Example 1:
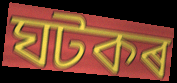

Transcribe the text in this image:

ঘটকৰ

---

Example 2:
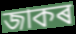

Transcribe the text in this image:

জাকৰ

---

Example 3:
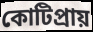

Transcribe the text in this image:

কোটিপ্ৰায়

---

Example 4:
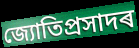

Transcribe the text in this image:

জ্যোতিপ্ৰসাদৰ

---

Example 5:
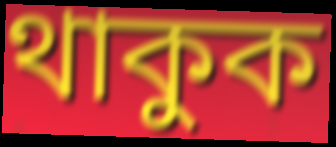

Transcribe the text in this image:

থাকুক